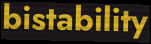
bistability